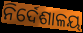
ନିର୍ଦେଶାଳୟ